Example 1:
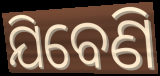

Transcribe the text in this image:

ଯିବେଣି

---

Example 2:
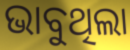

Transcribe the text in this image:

ଭାବୁଥିଲା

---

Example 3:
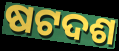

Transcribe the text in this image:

ଷଟଦଶ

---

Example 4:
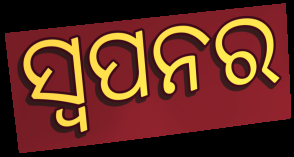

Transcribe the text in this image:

ସ୍ଵପନର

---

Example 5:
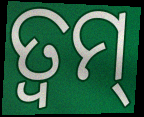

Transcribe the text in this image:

ତ୍ୱମ୍